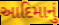
આદિમાનું